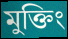
মুক্তিং